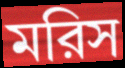
মরিস